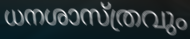
ധനശാസ്ത്രവും